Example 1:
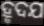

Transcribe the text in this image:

ହୃଦଯ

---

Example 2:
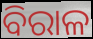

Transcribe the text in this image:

ବିରାଳ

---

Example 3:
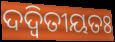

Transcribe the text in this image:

ଦଦ୍ୱିତୀୟତଃ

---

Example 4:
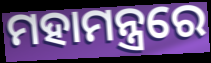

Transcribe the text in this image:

ମହାମନ୍ତ୍ରରେ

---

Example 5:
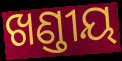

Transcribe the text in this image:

ଖଣ୍ଡୀୟ